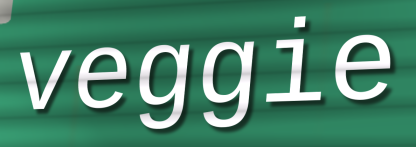
veggie